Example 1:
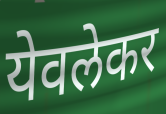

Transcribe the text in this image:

येवलेकर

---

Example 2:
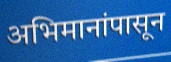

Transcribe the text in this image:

अभिमानांपासून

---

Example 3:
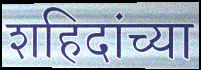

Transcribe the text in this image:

शहिदांच्या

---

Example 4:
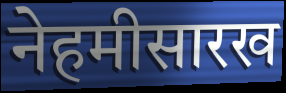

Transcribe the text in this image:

नेहमीसारख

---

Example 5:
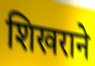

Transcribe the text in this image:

शिखराने